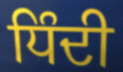
ਧਿੰਦੀ